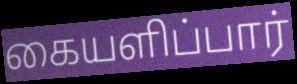
கையளிப்பார்